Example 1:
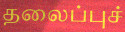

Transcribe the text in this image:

தலைப்புச்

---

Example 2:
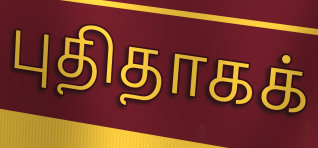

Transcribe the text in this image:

புதிதாகக்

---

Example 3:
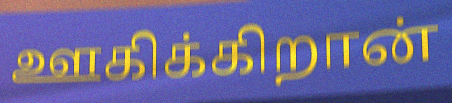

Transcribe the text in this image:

ஊகிக்கிறான்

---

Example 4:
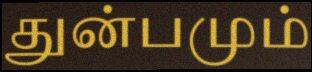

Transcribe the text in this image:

துன்பமும்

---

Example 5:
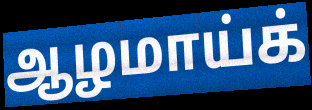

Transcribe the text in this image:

ஆழமாய்க்